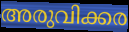
അരുവിക്കര